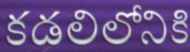
కడలిలోనికి